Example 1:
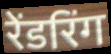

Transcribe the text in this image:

रेंडरिंग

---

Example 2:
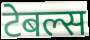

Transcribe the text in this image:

टेबल्स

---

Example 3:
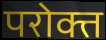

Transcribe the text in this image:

परोक्त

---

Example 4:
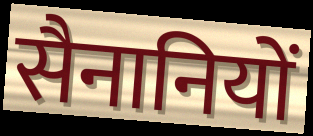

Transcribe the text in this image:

सैनानियों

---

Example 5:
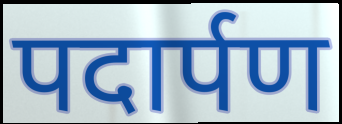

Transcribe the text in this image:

पदार्पण